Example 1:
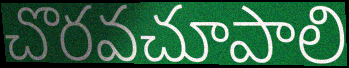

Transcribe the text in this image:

చొరవచూపాలి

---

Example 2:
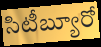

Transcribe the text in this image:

సిటీబ్యూరో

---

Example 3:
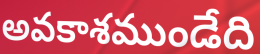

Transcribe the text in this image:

అవకాశముండేది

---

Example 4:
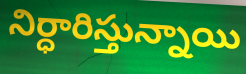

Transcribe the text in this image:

నిర్ధారిస్తున్నాయి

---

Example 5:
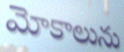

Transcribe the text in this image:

మోకాలును